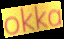
okka